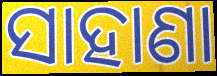
ସାହାଣା